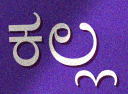
ಕಲ್ಲ